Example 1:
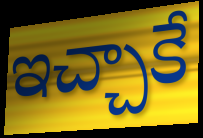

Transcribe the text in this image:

ఇచ్చాకే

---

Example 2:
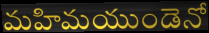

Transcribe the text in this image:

మహిమయుండెనో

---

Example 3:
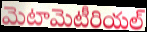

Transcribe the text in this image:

మెటామెటీరియల్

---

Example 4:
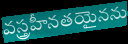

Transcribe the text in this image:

వస్త్రహీనతయైనను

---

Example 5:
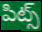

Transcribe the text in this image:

పిట్స్